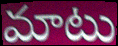
మాటు